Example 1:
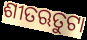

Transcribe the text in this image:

ଶୀତଋତୁଟା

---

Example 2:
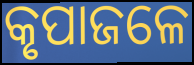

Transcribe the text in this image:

କୃପାଜଳେ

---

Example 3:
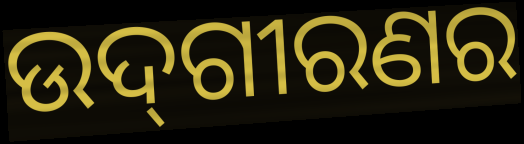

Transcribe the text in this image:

ଉଦ୍‌ଗୀରଣର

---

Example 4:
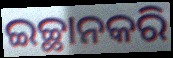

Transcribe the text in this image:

ଇଚ୍ଛାନକରି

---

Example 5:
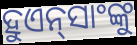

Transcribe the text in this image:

ହୁଏନ୍‌ସାଂଙ୍କୁ